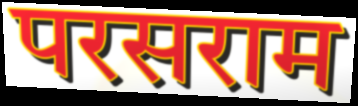
परसराम